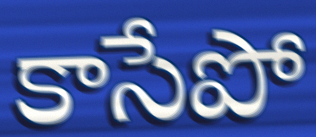
కాసేపో